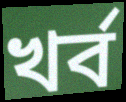
খৰ্ব